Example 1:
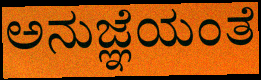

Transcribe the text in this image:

ಅನುಜ್ಞೆಯಂತೆ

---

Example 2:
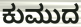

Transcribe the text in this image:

ಕುಮುದ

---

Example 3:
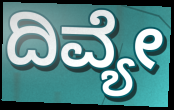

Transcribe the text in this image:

ದಿವ್ಯೇ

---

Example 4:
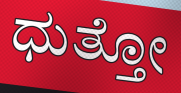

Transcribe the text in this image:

ಧುತ್ತೋ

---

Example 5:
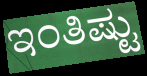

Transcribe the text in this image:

ಇಂತಿಷ್ಟು